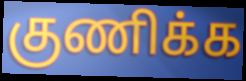
குணிக்க